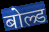
बोल्ड